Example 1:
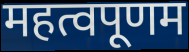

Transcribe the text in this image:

महत्वपूणम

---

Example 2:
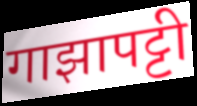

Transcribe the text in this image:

गाझापट्टी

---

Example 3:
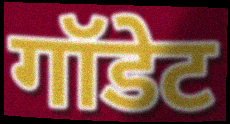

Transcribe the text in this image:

गॉडेट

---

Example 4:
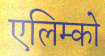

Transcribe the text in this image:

एलिम्को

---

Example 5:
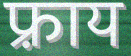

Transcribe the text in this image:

फ़्राय